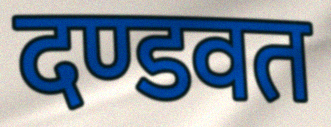
दण्‍डवत